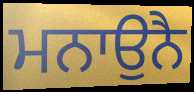
ਮਨਾਉਨੈ